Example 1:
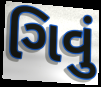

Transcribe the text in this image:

ગિવું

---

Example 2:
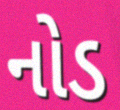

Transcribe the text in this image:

નોડ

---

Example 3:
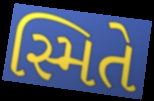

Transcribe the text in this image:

સ્મિતે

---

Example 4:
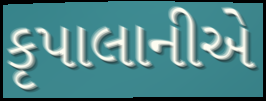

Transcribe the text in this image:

કૃપાલાનીએ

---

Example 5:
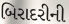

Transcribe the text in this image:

બિરાદરીની